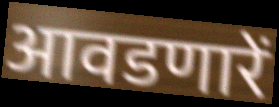
आवडणारें